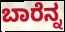
ಬಾರೆನ್ನ